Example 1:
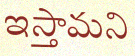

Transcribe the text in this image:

ఇస్తామని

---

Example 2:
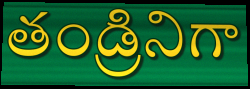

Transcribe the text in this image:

తండ్రినిగా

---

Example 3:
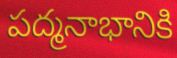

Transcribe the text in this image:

పద్మనాభానికి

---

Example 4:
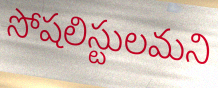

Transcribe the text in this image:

సోషలిస్టులమని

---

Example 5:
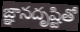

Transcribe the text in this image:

జ్ఞానదృష్టితో